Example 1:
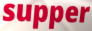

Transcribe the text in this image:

supper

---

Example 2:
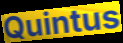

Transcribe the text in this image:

Quintus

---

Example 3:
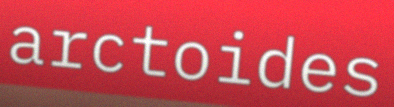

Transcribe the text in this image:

arctoides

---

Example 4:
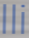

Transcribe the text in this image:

Ili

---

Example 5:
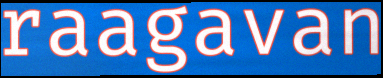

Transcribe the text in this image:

raagavan